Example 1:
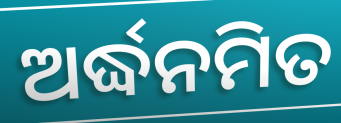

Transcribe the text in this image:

ଅର୍ଦ୍ଧନମିତ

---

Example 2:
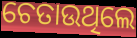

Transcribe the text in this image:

ଚେତାଉଥିଲେ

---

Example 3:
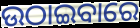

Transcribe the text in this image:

ଉଠାଇବାରେ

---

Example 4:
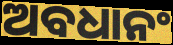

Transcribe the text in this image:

ଅବଧାନଂ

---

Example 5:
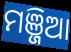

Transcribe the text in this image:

ମଞ୍ଜିଆ